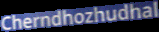
Cherndhozhudhal